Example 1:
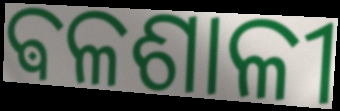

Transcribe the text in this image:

ଵଳଶାଳୀ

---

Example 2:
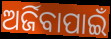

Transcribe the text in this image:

ଅର୍ଜିବାପାଇଁ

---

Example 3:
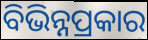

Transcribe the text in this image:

ବିଭିନ୍ନପ୍ରକାର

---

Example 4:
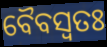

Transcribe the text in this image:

ବୈବସ୍ଵତଃ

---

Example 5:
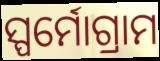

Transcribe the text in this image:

ସ୍ପର୍ମୋଗ୍ରାମ